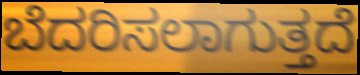
ಬೆದರಿಸಲಾಗುತ್ತದೆ